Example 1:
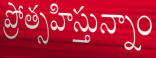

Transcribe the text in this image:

ప్రోత్సహిస్తున్నాం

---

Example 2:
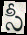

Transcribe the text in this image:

సీ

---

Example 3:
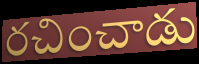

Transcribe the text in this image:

రచించాడు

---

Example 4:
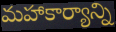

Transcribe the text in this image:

మహాకార్యాన్ని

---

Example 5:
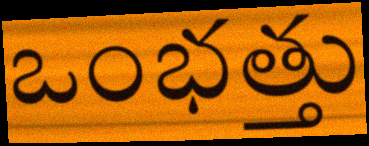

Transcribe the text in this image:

ఒంభత్తు